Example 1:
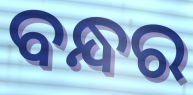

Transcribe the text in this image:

ବନ୍ଧର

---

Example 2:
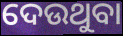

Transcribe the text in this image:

ଦେଉଥୁବା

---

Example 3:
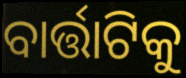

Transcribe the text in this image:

ବାର୍ତ୍ତାଟିକୁ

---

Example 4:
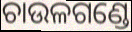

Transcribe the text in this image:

ଚାଉଳଗଣ୍ଡେ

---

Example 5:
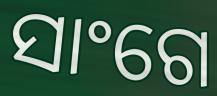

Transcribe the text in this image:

ସାଂଗେ